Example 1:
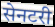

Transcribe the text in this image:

सेनटरी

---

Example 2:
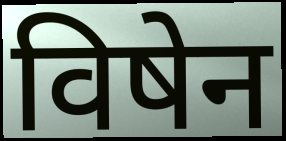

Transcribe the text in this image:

विषेन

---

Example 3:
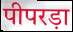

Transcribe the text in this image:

पीपरड़ा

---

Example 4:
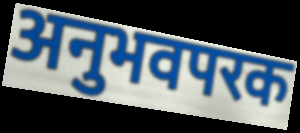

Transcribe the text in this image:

अनुभवपरक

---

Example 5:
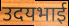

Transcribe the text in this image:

उदयभाई